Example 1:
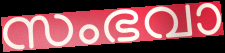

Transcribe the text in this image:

സംഭവാ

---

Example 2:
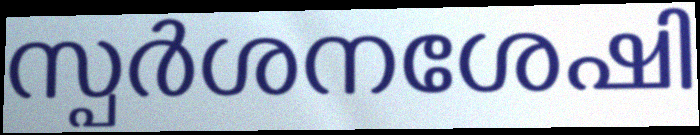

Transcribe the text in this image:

സ്പർശനശേഷി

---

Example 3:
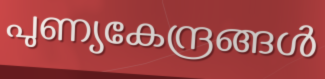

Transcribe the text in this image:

പുണ്യകേന്ദ്രങ്ങൾ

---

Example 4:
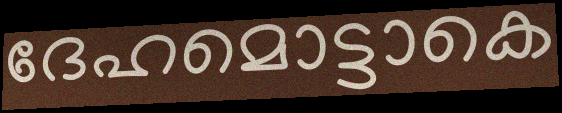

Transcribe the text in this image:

ദേഹമൊട്ടാകെ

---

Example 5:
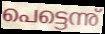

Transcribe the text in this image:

പെട്ടെന്നു്